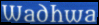
Wadhwa